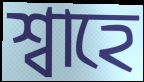
শ্বাহে